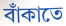
বাঁকাতে